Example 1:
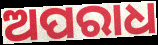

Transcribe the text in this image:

ଅପରାଧ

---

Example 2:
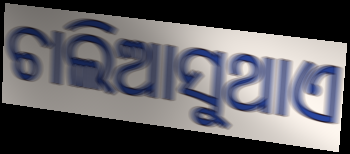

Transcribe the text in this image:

ଚାଲିଆସୁଥାଏ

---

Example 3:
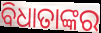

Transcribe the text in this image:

ବିଧାତାଙ୍କର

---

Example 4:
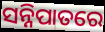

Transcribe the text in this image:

ସନ୍ନିପାତରେ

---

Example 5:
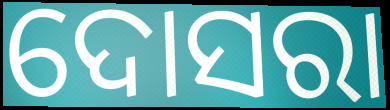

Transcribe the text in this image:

ଦୋସରା